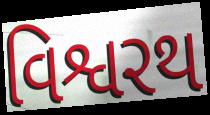
વિશ્વરથ